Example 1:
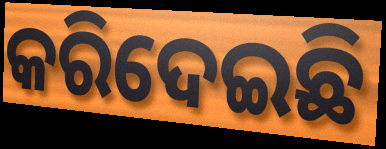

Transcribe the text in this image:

କରିଦେଇଛି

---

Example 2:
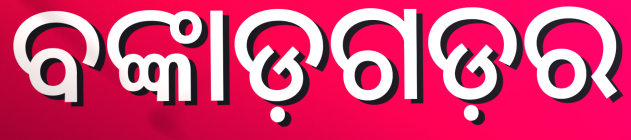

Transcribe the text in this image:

ବଙ୍କାଡ଼ଗଡ଼ର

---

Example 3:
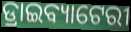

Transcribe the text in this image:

ଡ୍ରାଇବ୍ୟାଟେରୀ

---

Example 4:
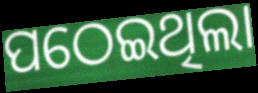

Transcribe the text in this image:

ପଠେଇଥିଲା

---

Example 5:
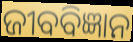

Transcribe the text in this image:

ଜୀବବିଜ୍ଞାନ